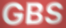
GBS